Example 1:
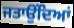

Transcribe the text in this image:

ਜਤਾਉੰਦਿਆਂ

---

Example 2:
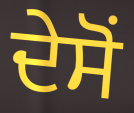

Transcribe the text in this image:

ਦੇਸੋਂ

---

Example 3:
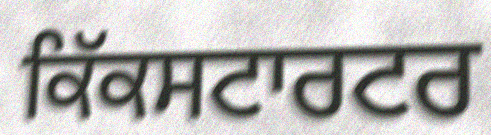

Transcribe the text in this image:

ਕਿੱਕਸਟਾਰਟਰ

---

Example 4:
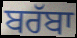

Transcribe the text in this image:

ਬਰੱਬਾ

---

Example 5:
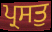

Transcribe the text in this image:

ਪ੍ਰਸਤੁ